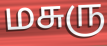
மசுரு